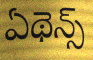
ఏథెన్స్